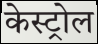
केस्ट्रोल